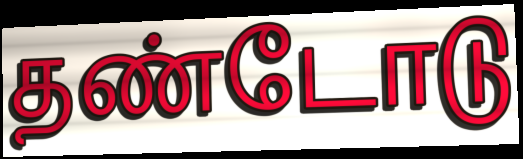
தண்டோடு